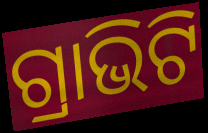
ଗ୍ରାଭିଟି